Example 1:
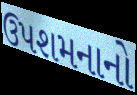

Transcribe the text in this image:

ઉપશમનાનો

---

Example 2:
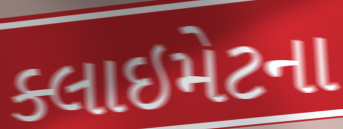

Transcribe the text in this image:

ક્લાઇમેટના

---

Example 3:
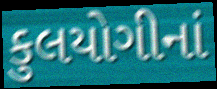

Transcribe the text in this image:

કુલયોગીનાં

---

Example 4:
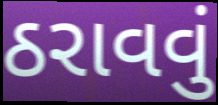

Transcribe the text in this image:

ઠરાવવું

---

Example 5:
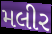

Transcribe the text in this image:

મલીર